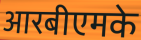
आरबीएमके